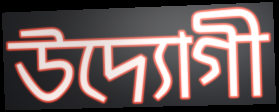
উদ্যোগী